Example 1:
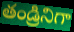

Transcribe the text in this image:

తండ్రినిగా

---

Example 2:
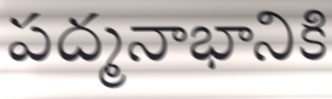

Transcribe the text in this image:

పద్మనాభానికి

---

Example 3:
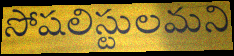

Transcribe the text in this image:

సోషలిస్టులమని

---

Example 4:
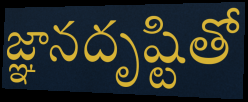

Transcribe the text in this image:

జ్ఞానదృష్టితో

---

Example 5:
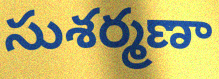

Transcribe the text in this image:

సుశర్మణా